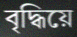
বৃদ্ধিয়ে